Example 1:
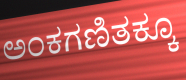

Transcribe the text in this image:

ಅಂಕಗಣಿತಕ್ಕೂ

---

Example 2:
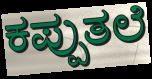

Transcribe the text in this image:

ಕಪ್ಪುತಲೆ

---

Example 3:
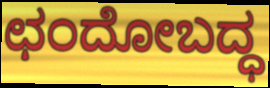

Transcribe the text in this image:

ಛಂದೋಬದ್ಧ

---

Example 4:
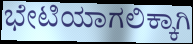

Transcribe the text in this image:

ಭೇಟಿಯಾಗಲಿಕ್ಕಾಗಿ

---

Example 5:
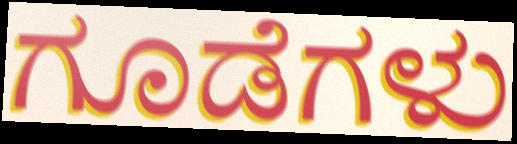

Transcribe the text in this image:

ಗೂಡೆಗಳು